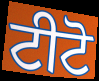
ਟੀਟੋ